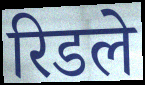
रिडले